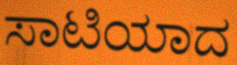
ಸಾಟಿಯಾದ